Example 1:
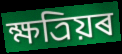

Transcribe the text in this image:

ক্ষত্ৰিয়ৰ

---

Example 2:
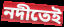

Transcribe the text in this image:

নদীতেই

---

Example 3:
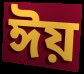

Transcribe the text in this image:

ঈয়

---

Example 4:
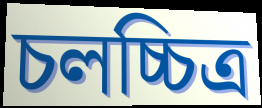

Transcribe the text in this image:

চলচ্চিত্ৰ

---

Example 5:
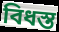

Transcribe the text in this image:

বিধস্ত